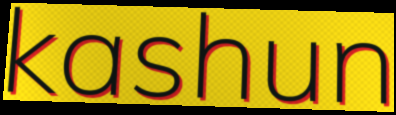
kashun